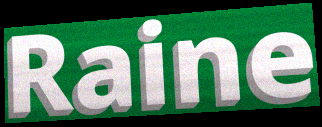
Raine